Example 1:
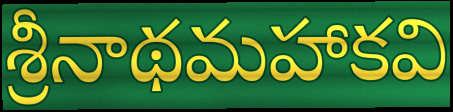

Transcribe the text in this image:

శ్రీనాథమహాకవి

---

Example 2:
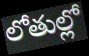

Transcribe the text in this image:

లోతుల్లో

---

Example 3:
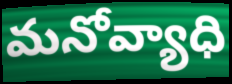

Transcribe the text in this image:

మనోవ్యాధి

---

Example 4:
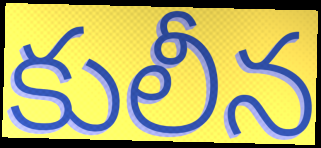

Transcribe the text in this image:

కులీన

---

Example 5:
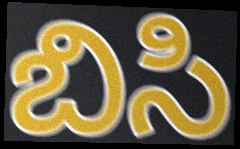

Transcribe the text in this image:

బిసి